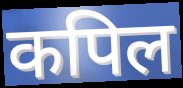
कपिल